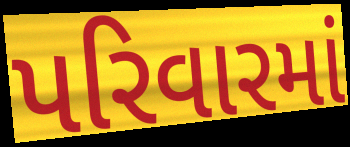
પરિવારમાં